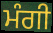
ਮੰਗੀ